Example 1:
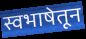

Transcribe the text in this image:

स्वभाषेतून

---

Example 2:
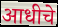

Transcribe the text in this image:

आधीचे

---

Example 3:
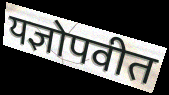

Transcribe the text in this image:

यज्ञोपवीत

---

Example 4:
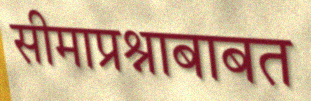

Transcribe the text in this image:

सीमाप्रश्नाबाबत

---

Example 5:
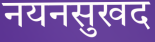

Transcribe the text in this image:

नयनसुखद